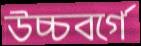
উচ্চবর্গে